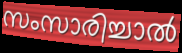
സംസാരിച്ചാൽ